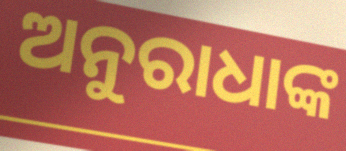
ଅନୁରାଧାଙ୍କ